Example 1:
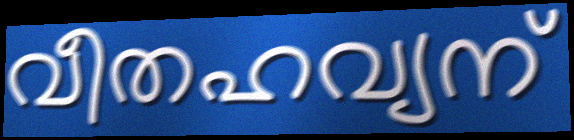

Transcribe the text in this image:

വീതഹവ്യന്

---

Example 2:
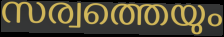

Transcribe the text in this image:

സര്വത്തെയും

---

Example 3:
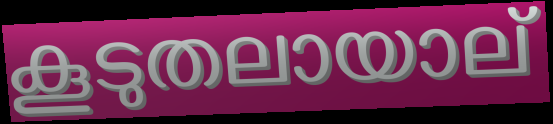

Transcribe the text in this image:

കൂടുതലായാല്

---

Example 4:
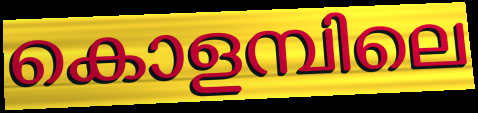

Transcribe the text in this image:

കൊളമ്പിലെ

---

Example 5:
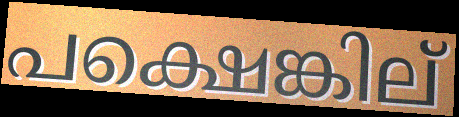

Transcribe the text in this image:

പക്ഷെങ്കില്